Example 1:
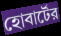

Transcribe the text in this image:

হোবার্টের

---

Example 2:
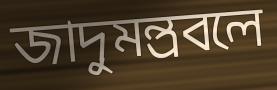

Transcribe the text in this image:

জাদুমন্ত্রবলে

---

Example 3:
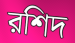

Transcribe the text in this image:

রশিদ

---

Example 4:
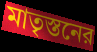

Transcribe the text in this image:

মাতৃস্তনের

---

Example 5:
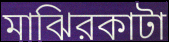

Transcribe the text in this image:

মাঝিরকাটা